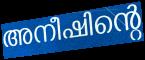
അനീഷിന്റെ